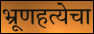
भ्रूणहत्येचा